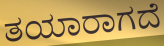
ತಯಾರಾಗದೆ